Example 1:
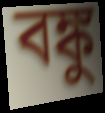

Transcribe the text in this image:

বঙ্কু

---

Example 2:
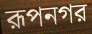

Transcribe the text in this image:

রূপনগর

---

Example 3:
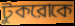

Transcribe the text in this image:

টুকরোকে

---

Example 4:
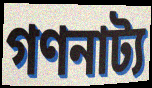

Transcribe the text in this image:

গণনাট্য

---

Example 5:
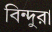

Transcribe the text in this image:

বিন্দুরা